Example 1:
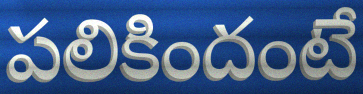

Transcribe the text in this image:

పలికిందంటే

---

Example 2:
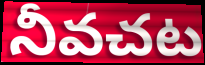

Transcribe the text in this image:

నీవచట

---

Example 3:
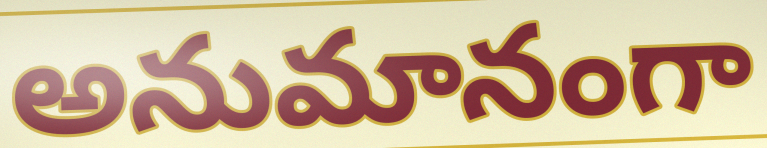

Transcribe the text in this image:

అనుమానంగా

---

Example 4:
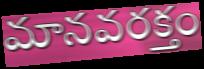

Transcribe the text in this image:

మానవరక్తం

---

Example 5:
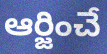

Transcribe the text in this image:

ఆర్జించే